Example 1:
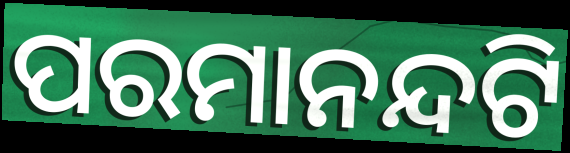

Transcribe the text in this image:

ପରମାନନ୍ଦଟି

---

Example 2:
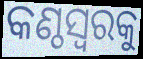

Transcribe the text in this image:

କଣ୍ଠସ୍ୱରକୁ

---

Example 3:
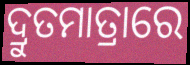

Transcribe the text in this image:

ଦ୍ରୁତମାତ୍ରାରେ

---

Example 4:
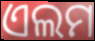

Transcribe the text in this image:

ଏଲମ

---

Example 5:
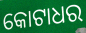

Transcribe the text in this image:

କୋଟାଧର